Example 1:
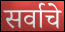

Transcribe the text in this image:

सर्वाचे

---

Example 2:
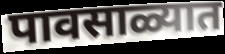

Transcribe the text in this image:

पावसाळ्यात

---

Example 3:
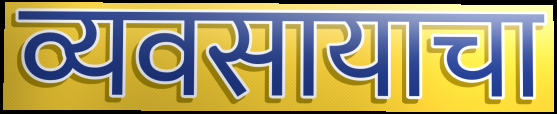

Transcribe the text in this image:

व्यवसायाचा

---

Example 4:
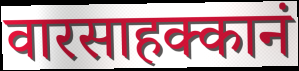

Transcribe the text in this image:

वारसाहक्कानं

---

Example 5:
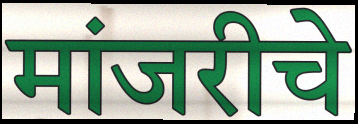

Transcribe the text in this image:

मांजरीचे